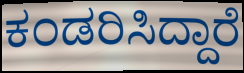
ಕಂಡರಿಸಿದ್ದಾರೆ